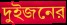
দুইজনের